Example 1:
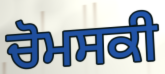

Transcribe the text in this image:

ਚੋਮਸਕੀ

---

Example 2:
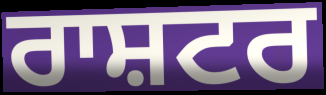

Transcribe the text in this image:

ਰਾਸ਼ਟਰ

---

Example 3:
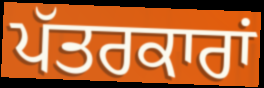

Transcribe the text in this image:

ਪੱਤਰਕਾਰਾਂ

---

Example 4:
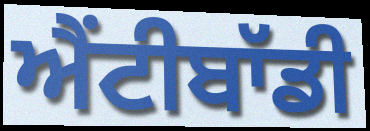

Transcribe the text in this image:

ਐਂਟੀਬਾੱਡੀ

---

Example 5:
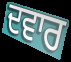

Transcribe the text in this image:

ਦਵਾਰ